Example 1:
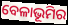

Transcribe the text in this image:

ବେଳାଭୂମିର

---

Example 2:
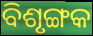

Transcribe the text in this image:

ବିଶୃଙ୍ଗକ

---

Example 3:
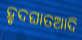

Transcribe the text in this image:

ହୃଦଘାତଆଦି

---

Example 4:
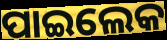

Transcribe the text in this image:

ପାଇଲେକ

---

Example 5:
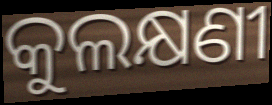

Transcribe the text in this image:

କୁଲକ୍ଷଣୀ